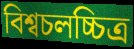
বিশ্বচলচ্চিত্র